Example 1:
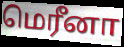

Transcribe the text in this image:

மெரீனா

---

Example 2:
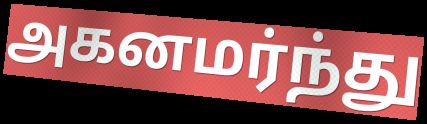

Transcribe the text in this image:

அகனமர்ந்து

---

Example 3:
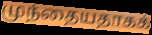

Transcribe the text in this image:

முந்தையதாகக்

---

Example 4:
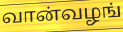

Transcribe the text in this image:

வான்வழங்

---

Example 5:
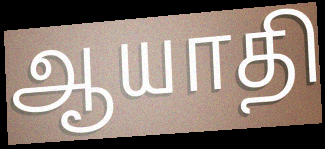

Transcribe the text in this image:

ஆயாதி